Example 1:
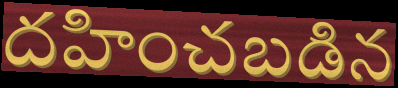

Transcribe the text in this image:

దహించబడిన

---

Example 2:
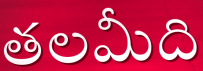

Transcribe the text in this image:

తలమీది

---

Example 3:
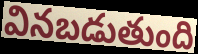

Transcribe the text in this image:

వినబడుతుంది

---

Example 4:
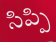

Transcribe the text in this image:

సిప్పి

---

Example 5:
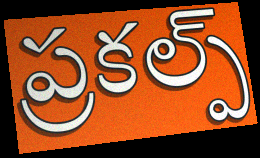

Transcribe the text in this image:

ప్రకల్ప్